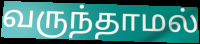
வருந்தாமல்